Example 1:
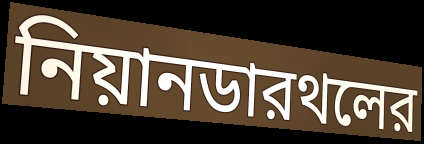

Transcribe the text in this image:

নিয়ানডারথলের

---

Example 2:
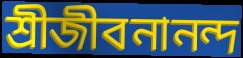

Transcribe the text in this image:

শ্রীজীবনানন্দ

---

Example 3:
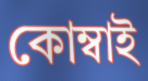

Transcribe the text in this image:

কোম্বাই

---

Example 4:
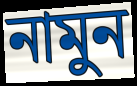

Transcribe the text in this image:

নামুন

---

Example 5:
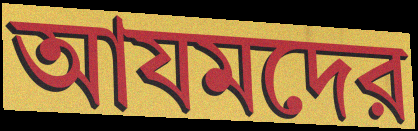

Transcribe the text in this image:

আযমদের